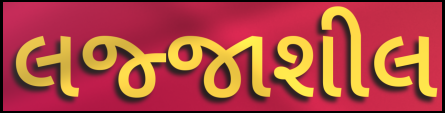
લજ્જાશીલ